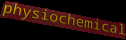
physiochemical